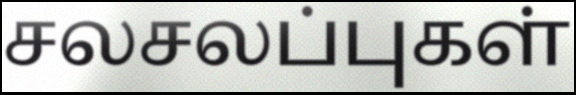
சலசலப்புகள்